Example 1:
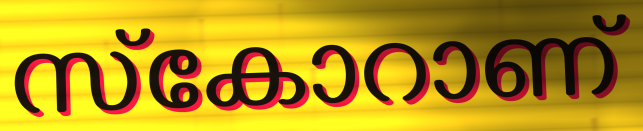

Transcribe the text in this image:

സ്‌കോറാണ്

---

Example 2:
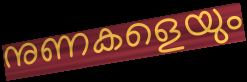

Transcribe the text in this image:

നുണകളെയും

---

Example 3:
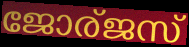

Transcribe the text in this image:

ജോര്ജസ്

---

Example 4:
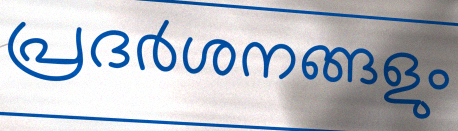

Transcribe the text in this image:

പ്രദർശനങ്ങളും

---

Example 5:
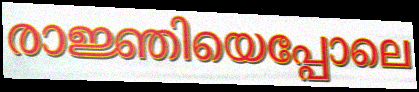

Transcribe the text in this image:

രാജ്ഞിയെപ്പോലെ